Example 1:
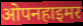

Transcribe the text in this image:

ओपनहाइमर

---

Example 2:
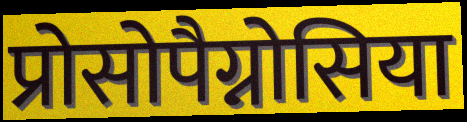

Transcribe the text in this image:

प्रोसोपैग्नोसिया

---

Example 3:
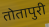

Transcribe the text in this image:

तोतापुरी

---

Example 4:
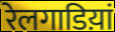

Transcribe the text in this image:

रेलगाडिय़ां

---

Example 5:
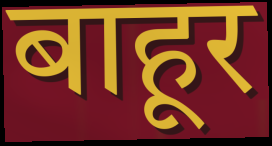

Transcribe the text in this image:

बाहूर